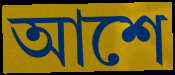
আশে